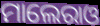
ମାଲେରାଓ